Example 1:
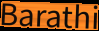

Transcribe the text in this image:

Barathi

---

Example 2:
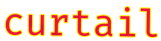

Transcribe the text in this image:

curtail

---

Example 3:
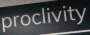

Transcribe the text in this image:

proclivity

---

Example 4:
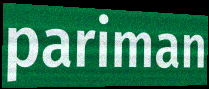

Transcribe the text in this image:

pariman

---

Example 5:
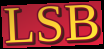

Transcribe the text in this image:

LSB